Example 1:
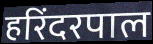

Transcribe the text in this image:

हरिंदरपाल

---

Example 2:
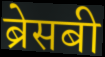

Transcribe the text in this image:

ब्रेसबी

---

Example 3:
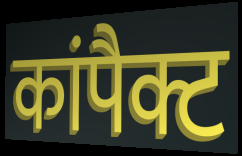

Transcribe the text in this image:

कांपैक्ट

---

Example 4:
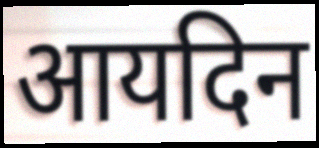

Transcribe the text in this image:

आयदिन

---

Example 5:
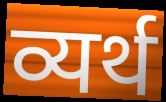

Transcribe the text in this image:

व्यर्थ